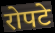
रोपटे